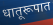
धातूरूपात